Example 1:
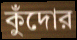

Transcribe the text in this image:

কুঁদোর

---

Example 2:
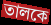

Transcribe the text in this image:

তালকে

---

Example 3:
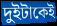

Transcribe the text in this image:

দুইটাকেই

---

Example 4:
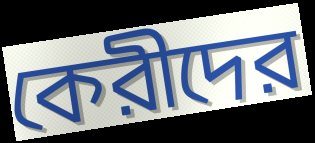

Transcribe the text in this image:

কেরীদের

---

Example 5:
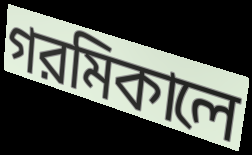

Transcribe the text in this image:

গরমিকালে